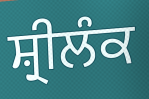
ਸ਼੍ਰੀਲੰਕ